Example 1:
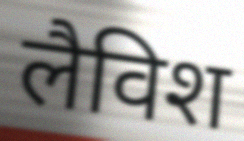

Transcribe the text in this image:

लैविश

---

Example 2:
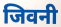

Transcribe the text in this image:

जिवनी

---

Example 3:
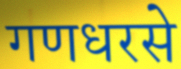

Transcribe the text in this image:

गणधरसे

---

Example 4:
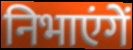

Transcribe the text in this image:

निभाएंगें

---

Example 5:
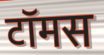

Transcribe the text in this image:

टॉमस